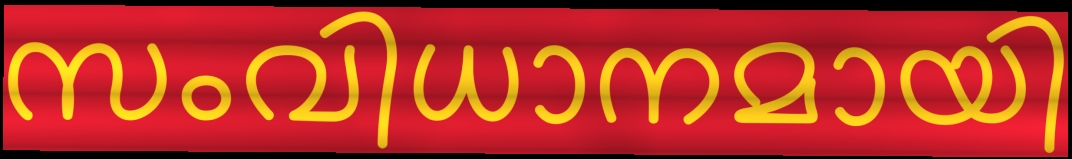
സംവിധാനമായി